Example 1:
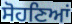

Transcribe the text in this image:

ਸੋਹਣਿਆਂ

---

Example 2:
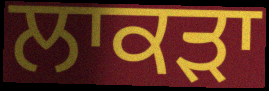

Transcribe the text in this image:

ਲਾਕੜਾ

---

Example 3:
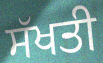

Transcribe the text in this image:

ਸੱਖਤੀ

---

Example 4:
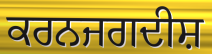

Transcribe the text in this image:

ਕਰਨਜਗਦੀਸ਼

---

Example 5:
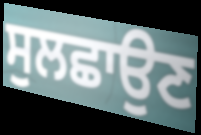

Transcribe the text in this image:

ਸੁਲਛਾਉਣ